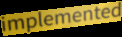
implemented